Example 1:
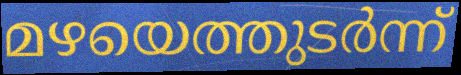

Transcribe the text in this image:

മഴയെത്തുടർന്ന്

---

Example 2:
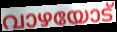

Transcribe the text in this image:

വാഴയോട്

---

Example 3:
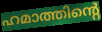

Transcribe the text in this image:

ഹമാത്തിന്റെ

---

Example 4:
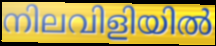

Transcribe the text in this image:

നിലവിളിയിൽ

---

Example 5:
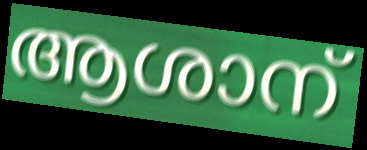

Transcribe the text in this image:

ആശാന്